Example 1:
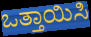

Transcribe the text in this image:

ಒತ್ತಾಯಿಸಿ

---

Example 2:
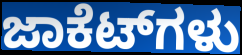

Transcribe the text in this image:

ಜಾಕೆಟ್‌ಗಳು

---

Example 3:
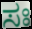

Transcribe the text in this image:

ಸಃ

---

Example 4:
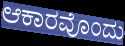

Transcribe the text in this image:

ಆಕಾರವೊಂದು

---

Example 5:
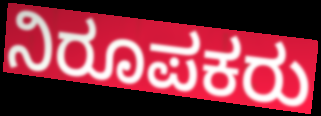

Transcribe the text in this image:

ನಿರೂಪಕರು